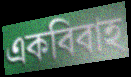
একবিবাহ